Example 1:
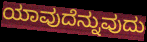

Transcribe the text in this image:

ಯಾವುದೆನ್ನುವುದು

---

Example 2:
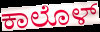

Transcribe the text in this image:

ಕಾಲೊಳ್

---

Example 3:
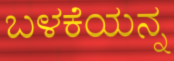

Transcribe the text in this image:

ಬಳಕೆಯನ್ನ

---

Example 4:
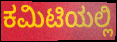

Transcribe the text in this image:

ಕಮಿಟಿಯಲ್ಲಿ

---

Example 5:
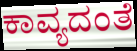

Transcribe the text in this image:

ಕಾವ್ಯದಂತೆ